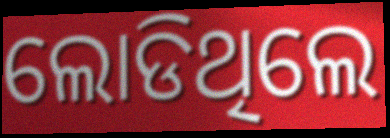
ଲୋଡିଥିଲେ